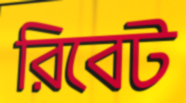
রিবেট